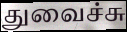
துவைச்சு